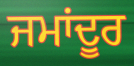
ਜਮਾਂਦੂਰ